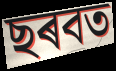
ছৰবত